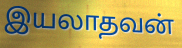
இயலாதவன்